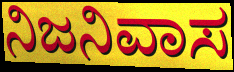
ನಿಜನಿವಾಸ